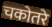
चकोतरे